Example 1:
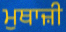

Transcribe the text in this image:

ਮੁਥਾਜ਼ੀ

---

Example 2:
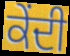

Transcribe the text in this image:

ਕੇਂਦੀ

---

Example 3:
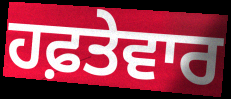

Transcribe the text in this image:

ਹਫ਼ਤੇਵਾਰ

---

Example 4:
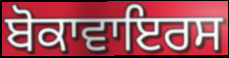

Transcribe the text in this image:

ਬੋਕਾਵਾਇਰਸ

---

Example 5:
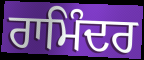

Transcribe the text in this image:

ਰਾਮਿੰਦਰ